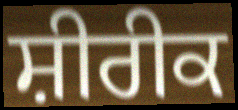
ਸ਼ੀਰੀਕ